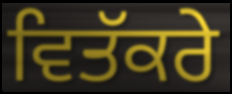
ਵਿਤੱਕਰੇ